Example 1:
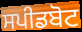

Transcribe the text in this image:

ਸਪੀਡਬੋਟ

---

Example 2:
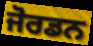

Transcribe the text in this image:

ਜੋਰਡਨ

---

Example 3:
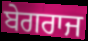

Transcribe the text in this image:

ਬੇਗਰਾਜ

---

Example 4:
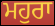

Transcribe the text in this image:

ਮਹੁਰਾ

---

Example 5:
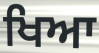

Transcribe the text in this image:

ਖਿਆ